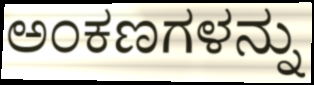
ಅಂಕಣಗಳನ್ನು